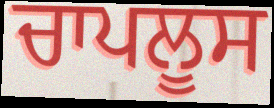
ਚਾਪਲੂਸ